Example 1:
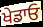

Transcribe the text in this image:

ਖੇਡਾਓ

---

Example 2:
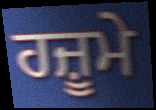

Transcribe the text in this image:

ਹਜ਼ੂਮੇ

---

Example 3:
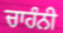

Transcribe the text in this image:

ਚਾਹੰਨੀ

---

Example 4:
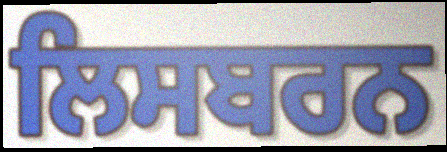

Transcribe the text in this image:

ਲਿਸਬਰਨ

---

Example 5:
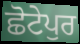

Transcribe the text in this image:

ਛੋਟੇਪੁਰ